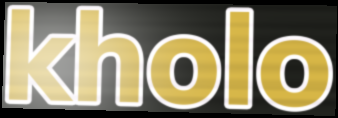
kholo